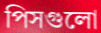
পিসগুলো